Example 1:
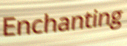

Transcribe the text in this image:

Enchanting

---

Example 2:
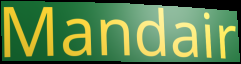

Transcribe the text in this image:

Mandair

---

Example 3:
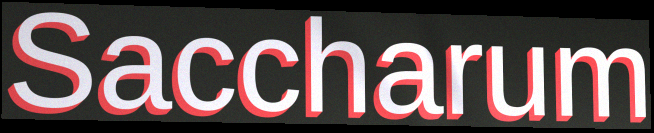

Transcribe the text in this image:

Saccharum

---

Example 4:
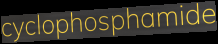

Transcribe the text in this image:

cyclophosphamide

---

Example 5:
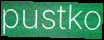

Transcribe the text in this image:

pustko